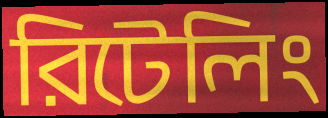
রিটেলিং